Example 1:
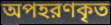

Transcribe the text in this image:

অপহরণকৃত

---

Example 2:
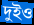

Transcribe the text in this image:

দুইও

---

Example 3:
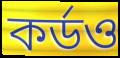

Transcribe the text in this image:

কর্ডও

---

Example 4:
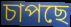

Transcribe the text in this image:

চাপছে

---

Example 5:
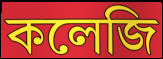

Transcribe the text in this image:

কলেজি